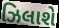
ઝિલાશે